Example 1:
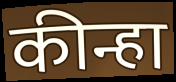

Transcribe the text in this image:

कीन्हा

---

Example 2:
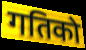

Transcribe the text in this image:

गतिको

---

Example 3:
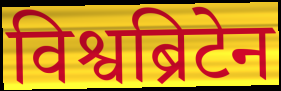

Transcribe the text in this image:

विश्वब्रिटेन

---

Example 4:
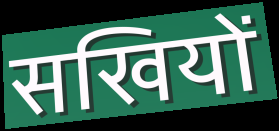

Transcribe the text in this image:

सखियों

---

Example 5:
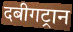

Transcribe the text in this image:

दबीगट्रान